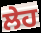
ਲੇਹ